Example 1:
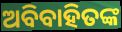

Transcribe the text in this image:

ଅବିବାହିତଙ୍କ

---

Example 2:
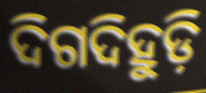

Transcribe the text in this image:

ଦିଗଦିହୁଡ଼ି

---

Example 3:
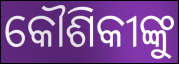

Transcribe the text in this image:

କୌଶିକୀଙ୍କୁ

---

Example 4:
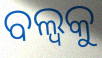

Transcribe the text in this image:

ବଲ୍ବକୁ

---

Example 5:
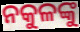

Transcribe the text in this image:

ନକୁଳଙ୍କୁ